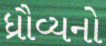
ધ્રૌવ્યનો